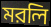
মরলি